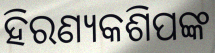
ହିରଣ୍ୟକଶିପଙ୍କ